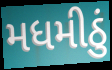
મધમીઠું